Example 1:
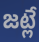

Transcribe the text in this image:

జట్లే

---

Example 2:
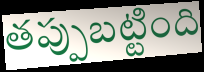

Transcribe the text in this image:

తప్పుబట్టింది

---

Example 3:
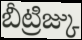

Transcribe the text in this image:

బీట్రిజ్కు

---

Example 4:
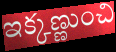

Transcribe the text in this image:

ఇక్కణ్ణుంచి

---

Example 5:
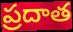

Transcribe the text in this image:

ప్రదాత